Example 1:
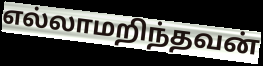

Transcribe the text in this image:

எல்லாமறிந்தவன்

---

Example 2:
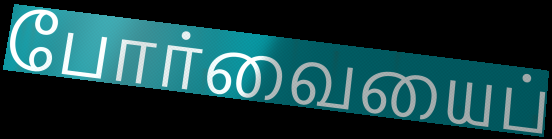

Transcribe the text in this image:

போர்வையைப்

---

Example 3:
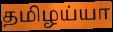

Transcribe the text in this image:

தமிழய்யா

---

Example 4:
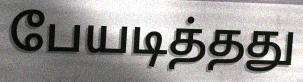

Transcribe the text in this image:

பேயடித்தது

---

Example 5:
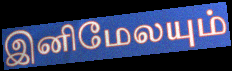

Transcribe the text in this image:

இனிமேலயும்